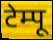
टेम्पू